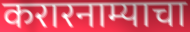
करारनाम्याचा